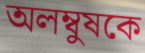
অলম্বুষকে